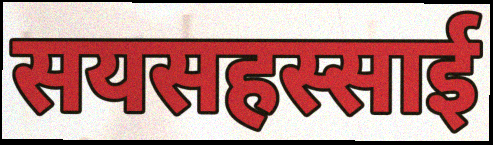
सयसहस्साई